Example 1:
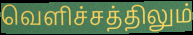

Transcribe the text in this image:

வெளிச்சத்திலும்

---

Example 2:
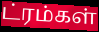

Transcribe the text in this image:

ட்ரம்கள்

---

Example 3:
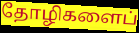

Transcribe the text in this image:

தோழிகளைப்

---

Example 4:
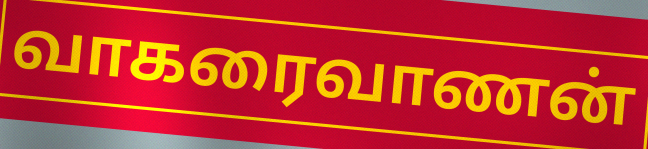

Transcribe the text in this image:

வாகரைவாணன்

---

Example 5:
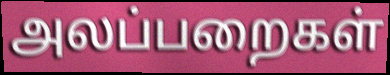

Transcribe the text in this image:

அலப்பறைகள்